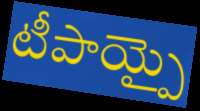
టీపాయ్పై